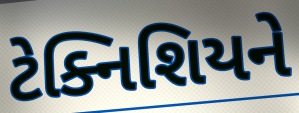
ટેક્નિશિયને